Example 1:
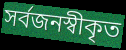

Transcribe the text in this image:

সর্বজনস্বীকৃত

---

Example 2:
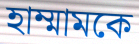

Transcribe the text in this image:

হাম্মামকে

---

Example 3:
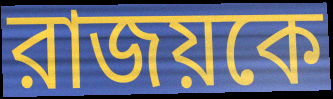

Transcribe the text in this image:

রাজয়কে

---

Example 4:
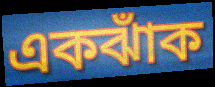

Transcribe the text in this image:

একঝাঁক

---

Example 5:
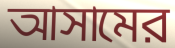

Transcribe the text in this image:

আসামের